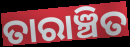
ତାରାଞ୍ଚିତ